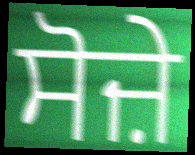
ਸੋਜ਼ੇ